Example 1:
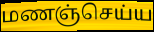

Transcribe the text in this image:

மணஞ்செய்ய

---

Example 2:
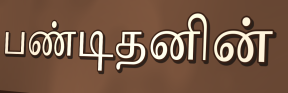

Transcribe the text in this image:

பண்டிதனின்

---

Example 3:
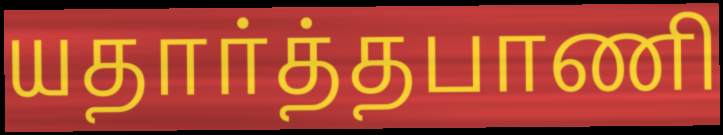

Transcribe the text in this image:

யதார்த்தபாணி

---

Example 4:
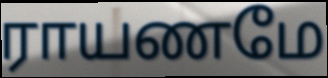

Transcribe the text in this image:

ராயணமே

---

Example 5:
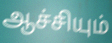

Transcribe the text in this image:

ஆச்சியும்